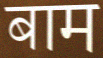
बाम